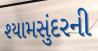
શ્યામસુંદરની